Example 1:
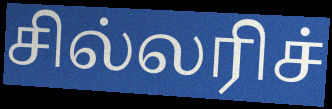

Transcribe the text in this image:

சில்லரிச்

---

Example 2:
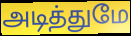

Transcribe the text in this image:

அடித்துமே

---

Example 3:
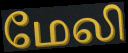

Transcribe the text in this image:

மேலி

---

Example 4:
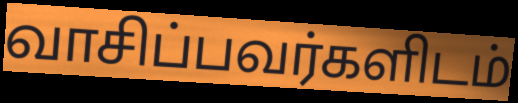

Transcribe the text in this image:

வாசிப்பவர்களிடம்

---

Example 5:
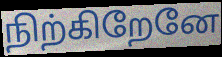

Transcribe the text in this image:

நிற்கிறேனே